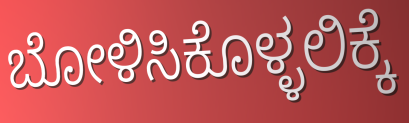
ಬೋಳಿಸಿಕೊಳ್ಳಲಿಕ್ಕೆ